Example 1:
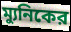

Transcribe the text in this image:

ম্যুনিকের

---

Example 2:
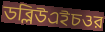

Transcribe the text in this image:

ডব্লিউএইচওর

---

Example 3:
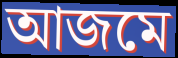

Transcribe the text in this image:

আজমে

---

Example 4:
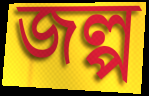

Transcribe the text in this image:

জল্প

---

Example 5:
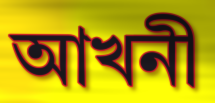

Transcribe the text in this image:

আখনী